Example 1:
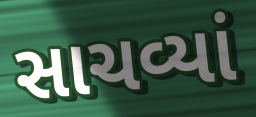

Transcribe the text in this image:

સાચવ્યાં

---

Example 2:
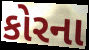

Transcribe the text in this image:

કોરના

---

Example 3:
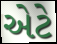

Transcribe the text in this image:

એટે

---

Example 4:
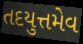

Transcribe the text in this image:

તદયુત્તમેવ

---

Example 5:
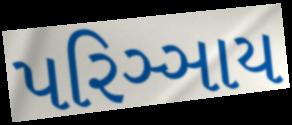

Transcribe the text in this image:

પરિઞ્ઞાય